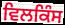
ਵਿਲਕਿੰਸ